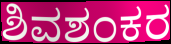
ಶಿವಶಂಕರ